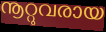
നൂറ്റുവരായ